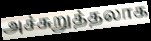
அச்சுறுத்தலாக